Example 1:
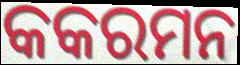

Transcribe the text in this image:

କକରମନ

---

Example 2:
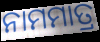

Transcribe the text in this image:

ନାମମାତ୍ର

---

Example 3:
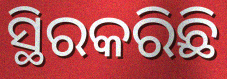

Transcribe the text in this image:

ସ୍ଥିରକରିଛି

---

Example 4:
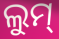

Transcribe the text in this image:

ଲୁମ୍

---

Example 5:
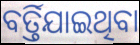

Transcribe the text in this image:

ବର୍ତ୍ତିଯାଇଥିବା